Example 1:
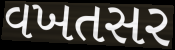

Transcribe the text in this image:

વખતસર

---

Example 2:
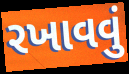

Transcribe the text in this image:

રખાવવું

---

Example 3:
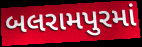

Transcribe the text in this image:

બલરામપુરમાં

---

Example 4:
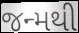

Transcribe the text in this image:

જન્મથી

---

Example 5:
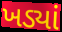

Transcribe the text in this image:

ખડ્યાં